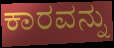
ಕಾರವನ್ನು